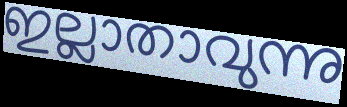
ഇല്ലാതാവുന്നു